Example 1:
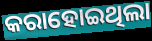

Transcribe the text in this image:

କରାହୋଇଥିଲା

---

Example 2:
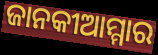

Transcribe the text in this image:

ଜାନକୀଆମ୍ମାର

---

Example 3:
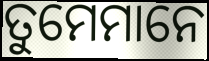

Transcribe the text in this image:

ତୁମେମାନେ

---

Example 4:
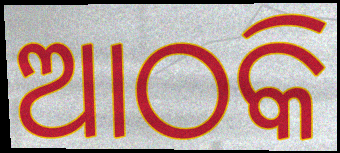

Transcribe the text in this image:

ଆଠକି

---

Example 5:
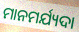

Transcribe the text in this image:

ମାନମର୍ଯ୍ୟଦା